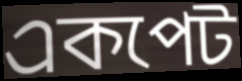
একপেট